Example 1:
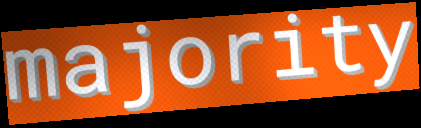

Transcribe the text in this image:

majority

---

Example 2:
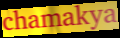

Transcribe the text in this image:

chamakya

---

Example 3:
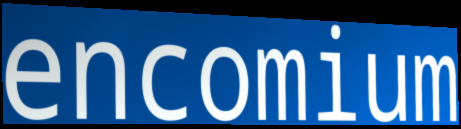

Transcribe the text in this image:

encomium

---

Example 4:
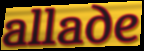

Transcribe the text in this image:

allade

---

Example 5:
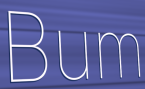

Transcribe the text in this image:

Bum